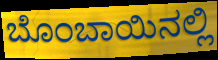
ಬೊಂಬಾಯಿನಲ್ಲಿ